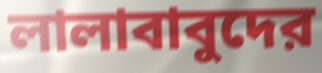
লালাবাবুদের